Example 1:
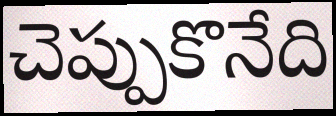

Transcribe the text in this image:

చెప్పుకొనేది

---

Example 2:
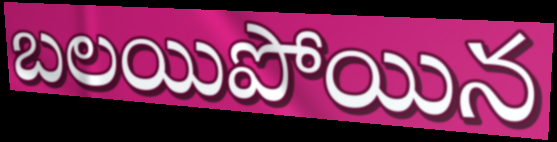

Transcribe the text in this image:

బలయిపోయిన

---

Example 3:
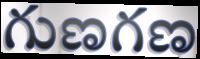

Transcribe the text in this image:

గుణగణ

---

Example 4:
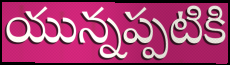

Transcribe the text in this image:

యున్నప్పటికి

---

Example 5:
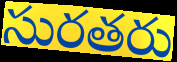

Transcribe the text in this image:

సురతరు